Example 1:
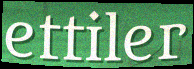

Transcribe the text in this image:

ettiler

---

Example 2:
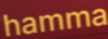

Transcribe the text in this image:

hamma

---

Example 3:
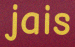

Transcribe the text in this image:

jais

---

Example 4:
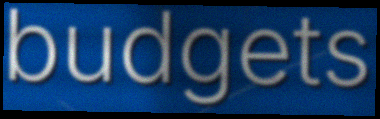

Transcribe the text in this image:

budgets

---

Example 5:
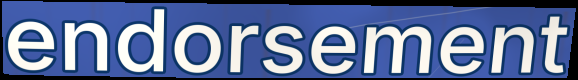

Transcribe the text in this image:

endorsement